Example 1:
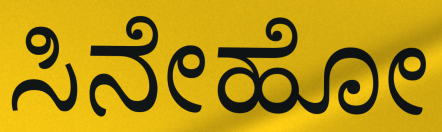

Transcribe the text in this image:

ಸಿನೇಹೋ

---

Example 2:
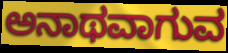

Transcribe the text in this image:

ಅನಾಥವಾಗುವ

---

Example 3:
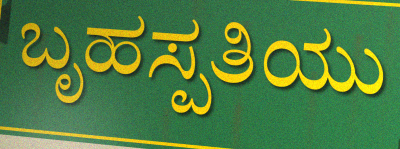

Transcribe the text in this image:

ಬೃಹಸ್ಪತಿಯು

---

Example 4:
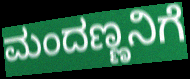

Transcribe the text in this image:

ಮಂದಣ್ಣನಿಗೆ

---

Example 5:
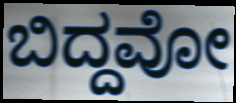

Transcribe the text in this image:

ಬಿದ್ದವೋ